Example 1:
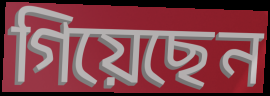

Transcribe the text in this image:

গিয়েছেন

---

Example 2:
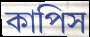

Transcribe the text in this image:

কাপিস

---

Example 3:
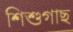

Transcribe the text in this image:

শিশুগাছ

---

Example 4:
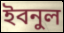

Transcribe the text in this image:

ইবনুল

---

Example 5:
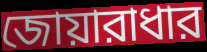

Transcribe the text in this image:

জোয়ারাধার